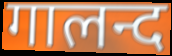
गालन्द